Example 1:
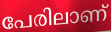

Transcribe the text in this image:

പേരിലാണ്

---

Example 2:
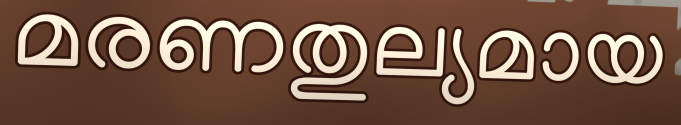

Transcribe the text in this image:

മരണതുല്യമായ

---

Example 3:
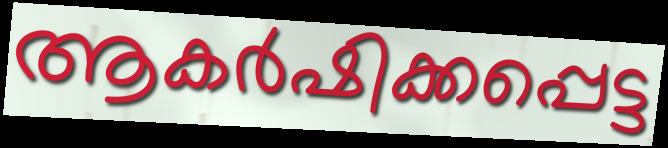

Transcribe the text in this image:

ആകർഷിക്കപ്പെട്ട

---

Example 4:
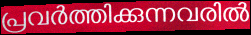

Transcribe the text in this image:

പ്രവർത്തിക്കുന്നവരിൽ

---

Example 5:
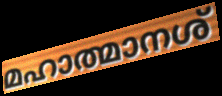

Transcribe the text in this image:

മഹാത്മാനശ്